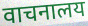
वाचनालय